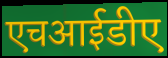
एचआईडीए